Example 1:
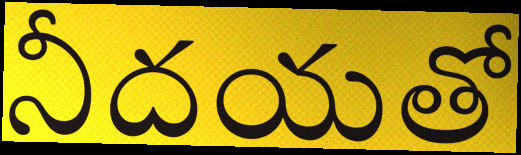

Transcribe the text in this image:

నీదయతో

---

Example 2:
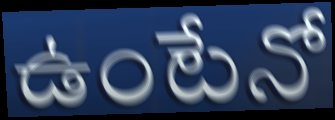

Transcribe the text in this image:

ఉంటేనో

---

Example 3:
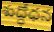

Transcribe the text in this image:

శుద్ధోధన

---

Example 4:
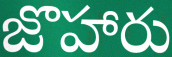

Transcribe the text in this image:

జొహారు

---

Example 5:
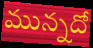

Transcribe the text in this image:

మున్నదో